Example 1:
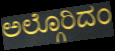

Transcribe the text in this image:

ಅಲ್ಗೊರಿದಂ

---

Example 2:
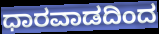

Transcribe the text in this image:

ಧಾರವಾಡದಿಂದ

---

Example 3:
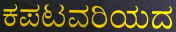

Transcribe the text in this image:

ಕಪಟವರಿಯದ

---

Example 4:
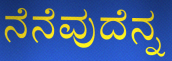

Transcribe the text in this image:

ನೆನೆವುದೆನ್ನ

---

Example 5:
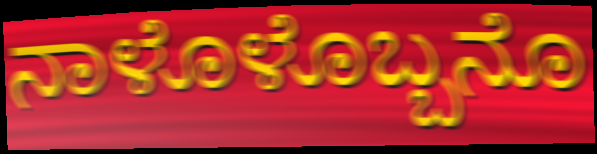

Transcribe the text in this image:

ನಾಳೊಳೊಬ್ಬನೊ